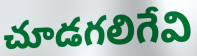
చూడగలిగేవి